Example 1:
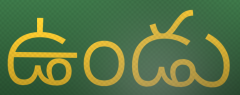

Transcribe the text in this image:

ఉండు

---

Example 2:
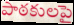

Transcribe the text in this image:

పాఠకులపై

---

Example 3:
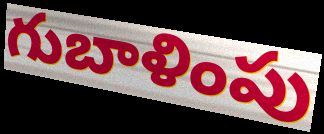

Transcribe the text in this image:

గుబాళింపు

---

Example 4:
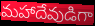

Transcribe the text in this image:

మహాదేవుడిగా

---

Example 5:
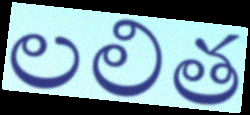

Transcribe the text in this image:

లలిత